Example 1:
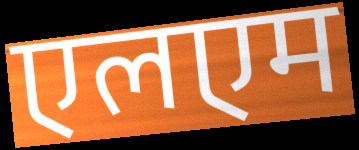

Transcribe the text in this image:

एलएम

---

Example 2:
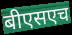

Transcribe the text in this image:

बीएसएच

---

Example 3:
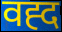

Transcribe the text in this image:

वह्द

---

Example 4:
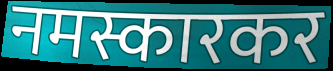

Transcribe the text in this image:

नमस्कारकर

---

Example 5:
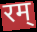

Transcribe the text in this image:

रम्